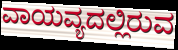
ವಾಯವ್ಯದಲ್ಲಿರುವ